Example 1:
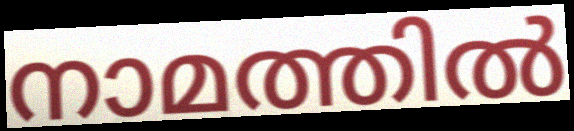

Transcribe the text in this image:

നാമത്തിൽ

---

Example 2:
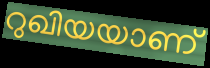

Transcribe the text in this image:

റുഖിയയാണ്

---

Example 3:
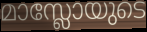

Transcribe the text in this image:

മാസ്ലോയുടെ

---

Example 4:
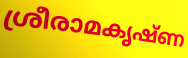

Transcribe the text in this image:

ശ്രീരാമകൃഷ്ണ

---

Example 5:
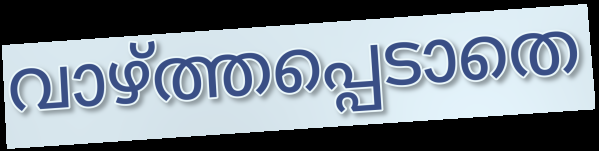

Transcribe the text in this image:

വാഴ്ത്തപ്പെടാതെ